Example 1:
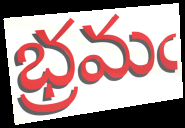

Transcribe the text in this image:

భ్రమఁ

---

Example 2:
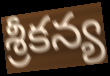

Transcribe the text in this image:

శ్రీకన్య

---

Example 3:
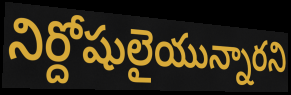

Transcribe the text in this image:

నిర్దోషులైయున్నారని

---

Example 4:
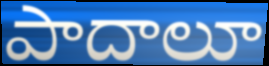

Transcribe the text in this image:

పాదాలూ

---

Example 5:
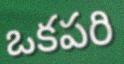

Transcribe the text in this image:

ఒకపరి